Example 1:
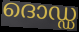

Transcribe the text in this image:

ദൊഡ്ഡ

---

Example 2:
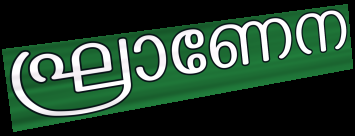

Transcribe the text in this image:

ഘ്രാണേന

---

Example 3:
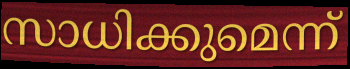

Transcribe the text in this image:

സാധിക്കുമെന്ന്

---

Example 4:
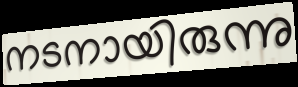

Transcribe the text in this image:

നടനായിരുന്നു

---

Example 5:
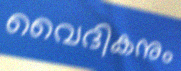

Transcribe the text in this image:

വൈദികനും